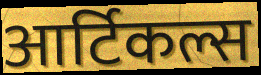
आर्टिकल्स